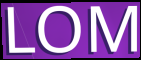
LOM